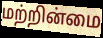
மற்றின்மை